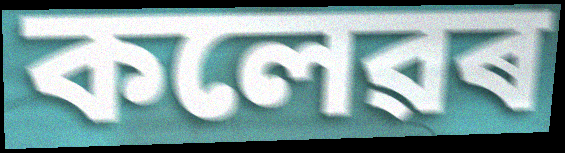
কলেৱৰ